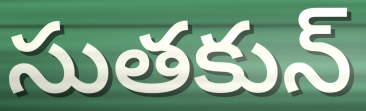
సుతకున్